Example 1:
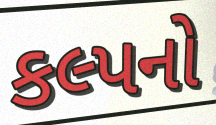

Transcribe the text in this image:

કલ્પનો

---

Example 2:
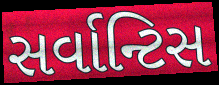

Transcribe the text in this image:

સર્વાન્ટિસ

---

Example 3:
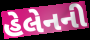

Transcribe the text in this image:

હેલેનની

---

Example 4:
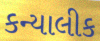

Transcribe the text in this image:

કન્યાલીક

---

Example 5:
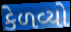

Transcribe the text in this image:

કેળવ્યો